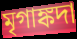
মৃগাঙ্কদা